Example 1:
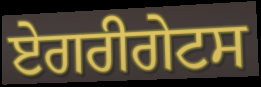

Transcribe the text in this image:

ਏਗਰੀਗੇਟਸ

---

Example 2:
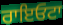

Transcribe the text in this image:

ਰਾਇਓਟਾ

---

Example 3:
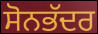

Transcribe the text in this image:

ਸੋਨਭੱਦਰ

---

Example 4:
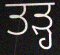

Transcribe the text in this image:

ਤੜ੍ਹ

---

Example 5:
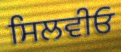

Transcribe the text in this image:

ਸਿਲਵੀਓ